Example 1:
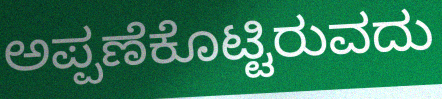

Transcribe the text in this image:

ಅಪ್ಪಣೆಕೊಟ್ಟಿರುವದು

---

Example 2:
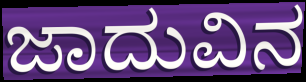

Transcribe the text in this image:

ಜಾದುವಿನ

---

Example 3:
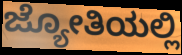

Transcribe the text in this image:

ಜ್ಯೋತಿಯಲ್ಲಿ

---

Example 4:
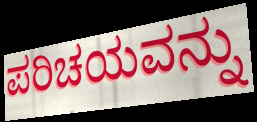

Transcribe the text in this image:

ಪರಿಚಯವನ್ನು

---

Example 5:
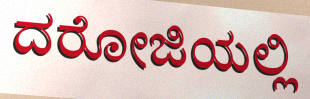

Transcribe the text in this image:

ದರೋಜಿಯಲ್ಲಿ